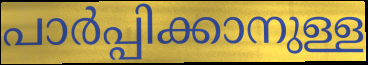
പാർപ്പിക്കാനുള്ള